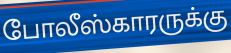
போலீஸ்காரருக்கு